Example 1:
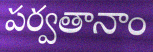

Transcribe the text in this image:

పర్వతానాం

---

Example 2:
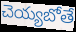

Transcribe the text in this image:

చెయ్యబోతే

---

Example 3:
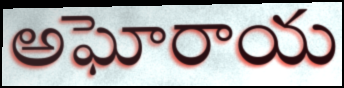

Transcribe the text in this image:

అఘోరాయ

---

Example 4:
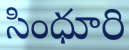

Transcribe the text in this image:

సింధూరి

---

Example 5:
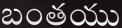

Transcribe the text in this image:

బంతయు